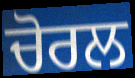
ਚੋਰਲ